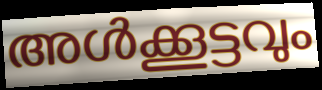
അൾക്കൂട്ടവും